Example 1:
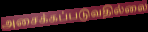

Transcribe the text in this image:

அசைக்கப்படுவதில்லை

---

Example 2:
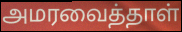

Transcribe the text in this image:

அமரவைத்தாள்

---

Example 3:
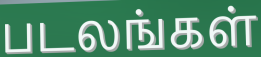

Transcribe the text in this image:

படலங்கள்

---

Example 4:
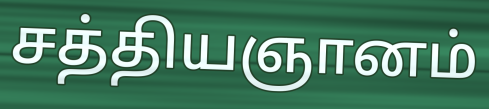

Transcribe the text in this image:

சத்தியஞானம்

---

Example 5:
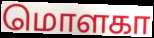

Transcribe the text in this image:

மொளகா